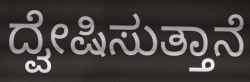
ದ್ವೇಷಿಸುತ್ತಾನೆ